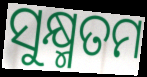
ସୁକ୍ଷ୍ମତମ